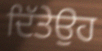
ਦਿੱਤੇਉਹ